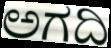
ಅಗದಿ